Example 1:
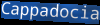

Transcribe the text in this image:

Cappadocia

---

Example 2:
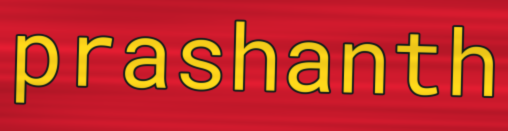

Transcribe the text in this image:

prashanth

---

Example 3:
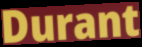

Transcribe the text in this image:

Durant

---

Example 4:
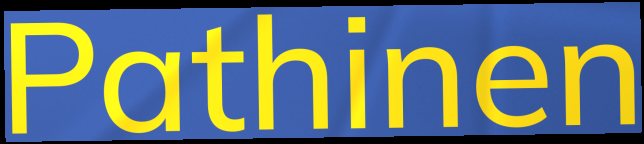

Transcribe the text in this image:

Pathinen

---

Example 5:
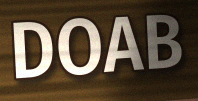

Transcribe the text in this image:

DOAB